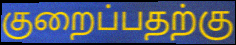
குறைப்பதற்கு